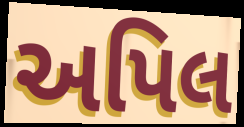
અપિલ